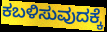
ಕಬಳಿಸುವುದಕ್ಕೆ